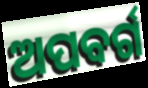
ଅପବର୍ଗ